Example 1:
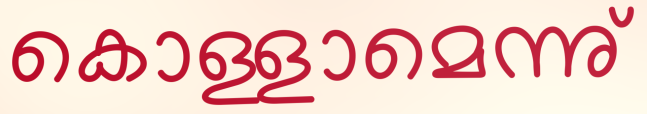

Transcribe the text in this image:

കൊള്ളാമെന്നു്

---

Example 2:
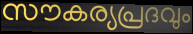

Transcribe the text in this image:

സൗകര്യപ്രദവും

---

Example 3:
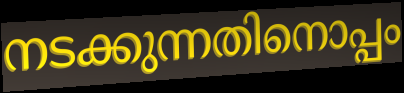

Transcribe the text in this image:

നടക്കുന്നതിനൊപ്പം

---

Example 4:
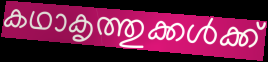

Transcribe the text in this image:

കഥാകൃത്തുക്കൾക്ക്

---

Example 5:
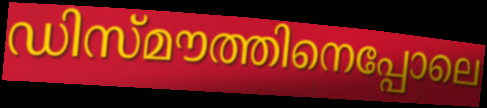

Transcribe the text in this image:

ഡിസ്മൗത്തിനെപ്പോലെ